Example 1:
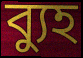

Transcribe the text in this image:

ব্যুহ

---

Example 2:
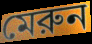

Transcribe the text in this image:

মেরুন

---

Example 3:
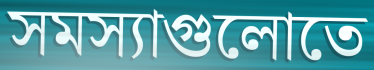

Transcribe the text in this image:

সমস্যাগুলোতে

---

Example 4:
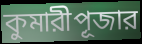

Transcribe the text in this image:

কুমারীপূজার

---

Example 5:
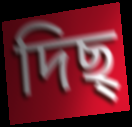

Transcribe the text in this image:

দিছ্